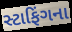
સ્ટાફિંગના